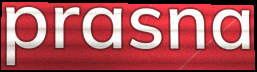
prasna